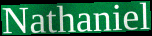
Nathaniel